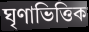
ঘৃণাভিত্তিক